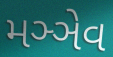
મઞ્ઞેવ